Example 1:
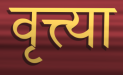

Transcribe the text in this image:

वृत्त्या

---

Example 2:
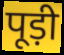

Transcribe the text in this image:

पूड़ी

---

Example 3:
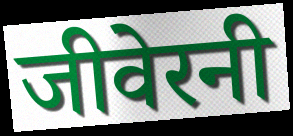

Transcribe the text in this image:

जीवेरनी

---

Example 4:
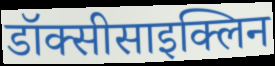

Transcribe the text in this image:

डॉक्सीसाइक्लिन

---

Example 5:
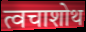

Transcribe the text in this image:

त्वचाशोथ